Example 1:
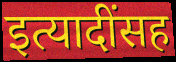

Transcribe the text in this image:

इत्यादींसह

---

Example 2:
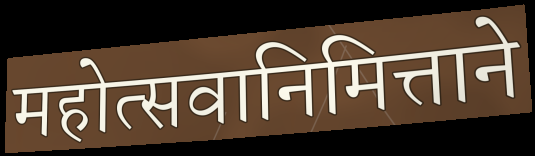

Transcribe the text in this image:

महोत्सवानिमित्ताने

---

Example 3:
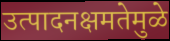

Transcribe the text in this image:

उत्पादनक्षमतेमुळे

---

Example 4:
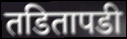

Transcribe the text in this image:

तडितापडी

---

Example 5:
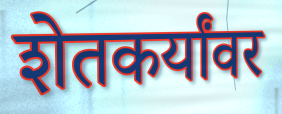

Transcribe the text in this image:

शेतकर्यांवर